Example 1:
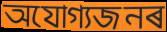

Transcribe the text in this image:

অযোগ্যজনৰ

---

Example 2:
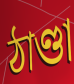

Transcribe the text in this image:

ঠাণ্ডা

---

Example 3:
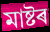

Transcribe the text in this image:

মাষ্টৰ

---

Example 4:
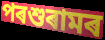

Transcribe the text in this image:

পৰশুৰামৰ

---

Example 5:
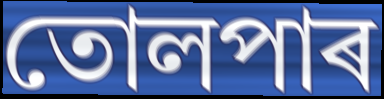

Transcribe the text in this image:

তোলপাৰ